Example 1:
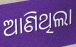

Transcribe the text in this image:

ଆଣିଥିଲା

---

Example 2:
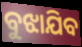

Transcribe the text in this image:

ବୁଝାଯିବ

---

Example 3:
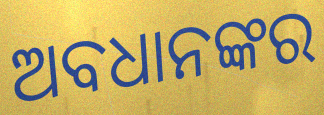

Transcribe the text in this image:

ଅବଧାନଙ୍କର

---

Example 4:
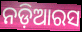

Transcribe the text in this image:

ନଡ଼ିଆରସ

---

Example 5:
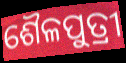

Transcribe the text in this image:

ଶୈଳପୁତ୍ରୀ